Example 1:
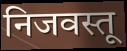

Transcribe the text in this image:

निजवस्तू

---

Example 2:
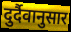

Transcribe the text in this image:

दुर्दैवानुसार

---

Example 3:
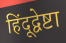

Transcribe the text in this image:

हिंदूद्वेष्टा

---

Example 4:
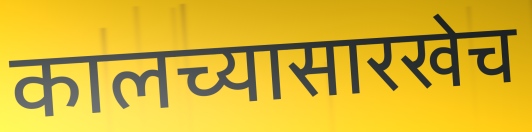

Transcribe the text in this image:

कालच्यासारखेच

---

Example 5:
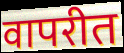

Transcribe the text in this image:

वापरीत